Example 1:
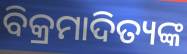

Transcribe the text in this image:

ବିକ୍ରମାଦିତ୍ୟଙ୍କ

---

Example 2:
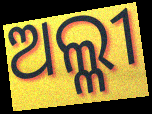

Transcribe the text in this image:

ଅଲ୍ଳୀ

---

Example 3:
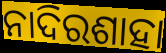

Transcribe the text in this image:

ନାଦିରଶାହା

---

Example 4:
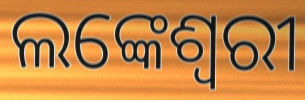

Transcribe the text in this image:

ଲଙ୍କେଶ୍ୱରୀ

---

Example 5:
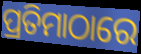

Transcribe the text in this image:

ପ୍ରତିମାଠାରେ